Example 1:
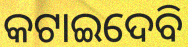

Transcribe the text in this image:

କଟାଇଦେବି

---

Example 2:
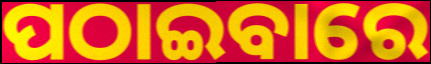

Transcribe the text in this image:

ପଠାଇବାରେ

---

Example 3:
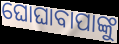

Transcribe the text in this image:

ଘୋଘାବାପାଙ୍କୁ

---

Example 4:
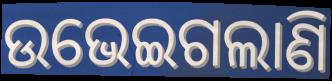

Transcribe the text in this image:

ଉଭେଇଗଲାଣି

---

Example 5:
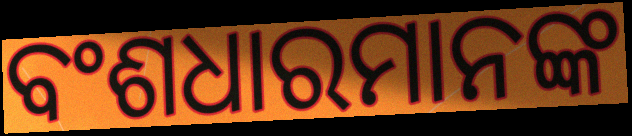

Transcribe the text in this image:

ବଂଶଧାରମାନଙ୍କ